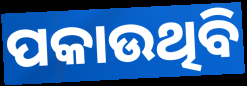
ପକାଉଥିବି